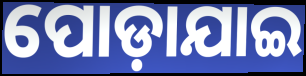
ପୋଡ଼ାଯାଇ